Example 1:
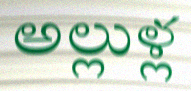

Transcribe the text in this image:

అల్లుళ్ల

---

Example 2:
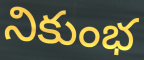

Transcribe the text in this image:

నికుంభ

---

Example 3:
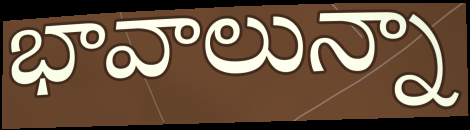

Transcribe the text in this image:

భావాలున్నా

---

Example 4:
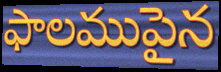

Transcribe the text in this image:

ఫాలముపైన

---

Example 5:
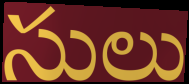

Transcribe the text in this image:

సులు